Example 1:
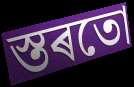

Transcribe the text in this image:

স্তৰতো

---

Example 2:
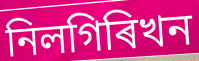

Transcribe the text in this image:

নিলগিৰিখন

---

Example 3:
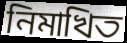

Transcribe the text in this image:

নিমাখিত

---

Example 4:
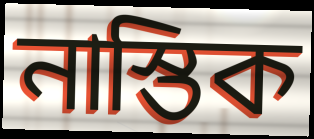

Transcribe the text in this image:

নাস্তিক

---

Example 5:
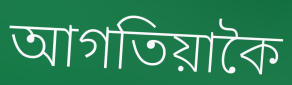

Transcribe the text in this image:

আগতিয়াকৈ